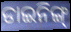
ଡାଇନିଙ୍ଗ୍